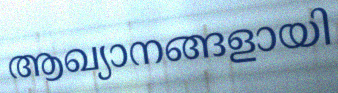
ആഖ്യാനങ്ങളായി